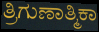
ತ್ರಿಗುಣಾತ್ಮಿಕಾ